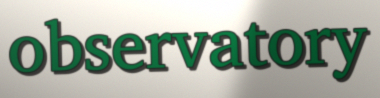
observatory